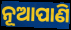
ନୂଆପାଣି